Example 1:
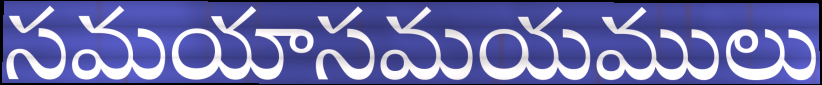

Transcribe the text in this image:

సమయాసమయములు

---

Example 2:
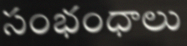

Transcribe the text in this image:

సంభంధాలు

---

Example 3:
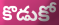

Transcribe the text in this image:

కొడుకో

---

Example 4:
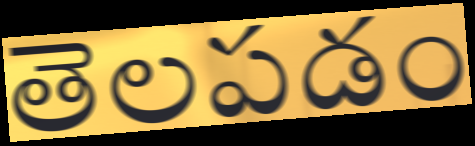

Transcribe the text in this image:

తెలపడం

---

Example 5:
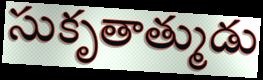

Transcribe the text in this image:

సుకృతాత్ముడు